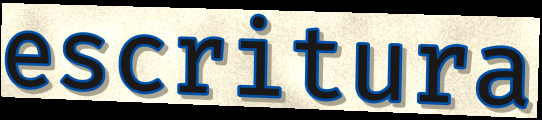
escritura